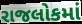
રાજલોકમાં